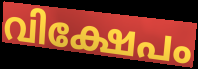
വിക്ഷേപം